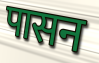
पासन